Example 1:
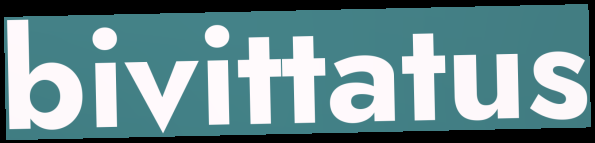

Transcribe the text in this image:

bivittatus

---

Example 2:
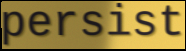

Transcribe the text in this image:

persist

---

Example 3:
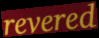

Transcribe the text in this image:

revered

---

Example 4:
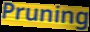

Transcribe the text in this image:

Pruning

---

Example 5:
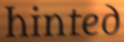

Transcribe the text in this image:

hinted